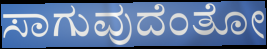
ಸಾಗುವುದೆಂತೋ